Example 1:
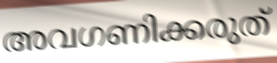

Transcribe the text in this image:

അവഗണിക്കരുത്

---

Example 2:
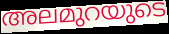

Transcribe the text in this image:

അലമുറയുടെ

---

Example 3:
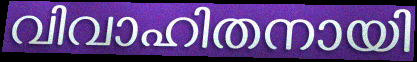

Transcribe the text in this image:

വിവാഹിതനായി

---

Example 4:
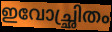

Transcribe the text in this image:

ഇവോച്ഛ്രിതം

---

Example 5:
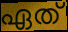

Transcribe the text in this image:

ഏത്